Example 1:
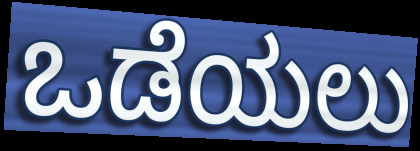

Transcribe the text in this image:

ಒಡೆಯಲು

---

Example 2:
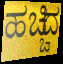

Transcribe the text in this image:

ಹಚ್ಚಿದ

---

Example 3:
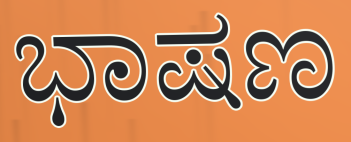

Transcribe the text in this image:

ಭಾಷಣ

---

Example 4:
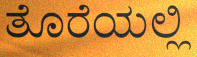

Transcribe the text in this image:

ತೊರೆಯಲ್ಲಿ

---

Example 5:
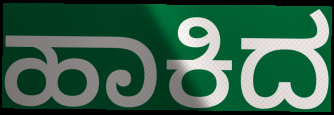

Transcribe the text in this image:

ಹಾಕಿದ